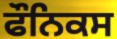
ਫੌਨਿਕਸ